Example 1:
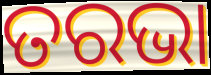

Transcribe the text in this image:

ତରଭା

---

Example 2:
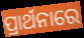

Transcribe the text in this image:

ପ୍ରାର୍ଥନାରେ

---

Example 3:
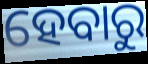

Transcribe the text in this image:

ହେବାରୁ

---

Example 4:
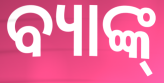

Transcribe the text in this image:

ବ୍ୟାଙ୍କ୍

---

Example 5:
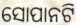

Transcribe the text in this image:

ସୋପାନଟି